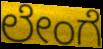
ಲೇಂಗೆ